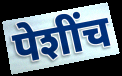
पेशींच